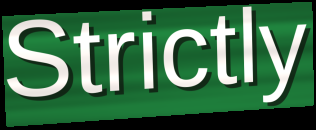
Strictly